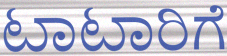
ಟಾಟಾರಿಗೆ